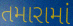
તમારામાં